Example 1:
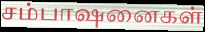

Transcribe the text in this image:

சம்பாஷனைகள்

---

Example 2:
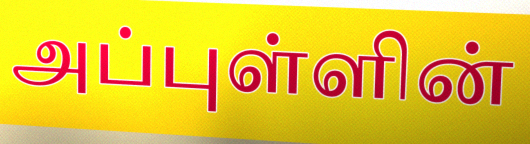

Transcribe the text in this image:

அப்புள்ளின்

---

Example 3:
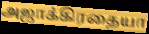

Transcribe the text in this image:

அஜாக்கிரதையா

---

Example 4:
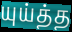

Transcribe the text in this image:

யுய்த்த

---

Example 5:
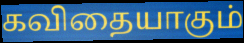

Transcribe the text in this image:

கவிதையாகும்